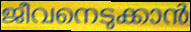
ജീവനെടുക്കാൻ